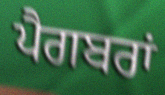
ਪੈਗਬਰਾਂ